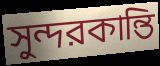
সুন্দরকান্তি